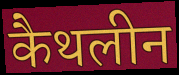
कैथलीन